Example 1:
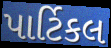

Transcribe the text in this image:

પાર્ટિકલ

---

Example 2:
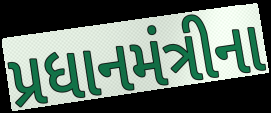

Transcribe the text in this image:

પ્રધાનમંત્રીના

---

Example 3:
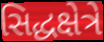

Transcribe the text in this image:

સિદ્ધક્ષેત્રે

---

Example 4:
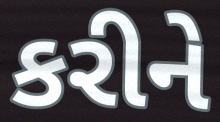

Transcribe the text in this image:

કરીને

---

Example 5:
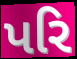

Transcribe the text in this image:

પરિ